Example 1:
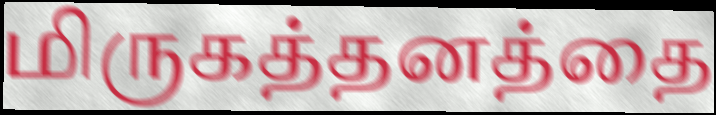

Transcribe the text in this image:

மிருகத்தனத்தை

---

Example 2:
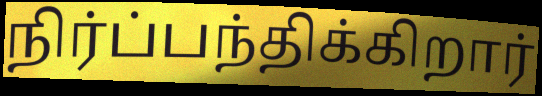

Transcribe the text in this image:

நிர்ப்பந்திக்கிறார்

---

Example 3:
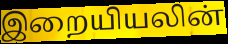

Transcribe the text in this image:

இறையியலின்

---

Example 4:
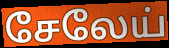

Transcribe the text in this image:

சேலேய்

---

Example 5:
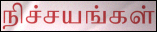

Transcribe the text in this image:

நிச்சயங்கள்